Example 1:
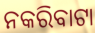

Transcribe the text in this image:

ନକରିବାଟା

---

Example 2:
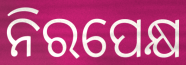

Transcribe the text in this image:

ନିରପେକ୍ଷ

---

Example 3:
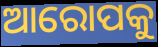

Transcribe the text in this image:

ଆରୋପକୁ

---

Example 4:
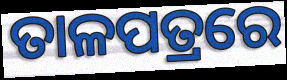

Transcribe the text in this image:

ତାଳପତ୍ରରେ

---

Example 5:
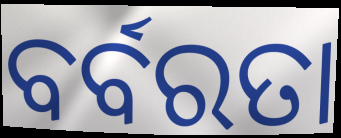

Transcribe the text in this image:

ବର୍ବରତା